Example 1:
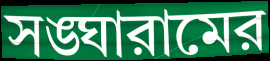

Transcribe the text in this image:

সঙ্ঘারামের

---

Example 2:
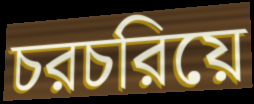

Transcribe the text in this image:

চরচরিয়ে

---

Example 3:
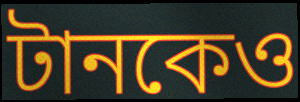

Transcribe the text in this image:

টানকেও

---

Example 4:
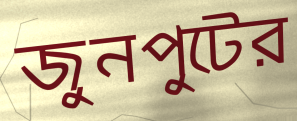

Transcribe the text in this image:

জুনপুটের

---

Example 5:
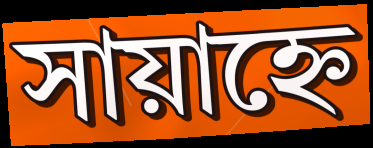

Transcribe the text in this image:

সায়াহ্নে